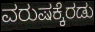
ವರುಷಕ್ಕೆರಡು